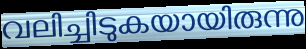
വലിച്ചിടുകയായിരുന്നു